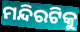
ମନ୍ଦିରଟିକୁ